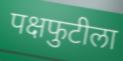
पक्षफुटीला